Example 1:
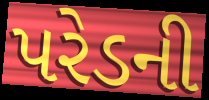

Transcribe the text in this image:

પરેડની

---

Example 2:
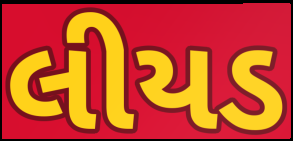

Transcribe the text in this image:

લીયડ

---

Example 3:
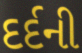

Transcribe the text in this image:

દર્દની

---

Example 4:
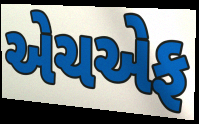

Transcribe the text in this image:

એચએફ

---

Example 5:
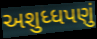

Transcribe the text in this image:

અશુધ્ધપણું